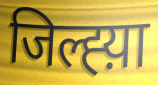
जिल्ह्य़ा